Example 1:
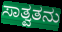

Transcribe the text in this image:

ಸಾತ್ವತನು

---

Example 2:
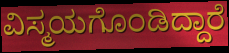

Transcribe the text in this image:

ವಿಸ್ಮಯಗೊಂಡಿದ್ದಾರೆ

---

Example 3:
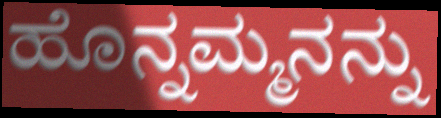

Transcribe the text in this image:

ಹೊನ್ನಮ್ಮನನ್ನು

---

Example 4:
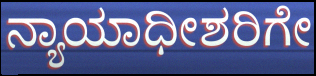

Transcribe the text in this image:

ನ್ಯಾಯಾಧೀಶರಿಗೇ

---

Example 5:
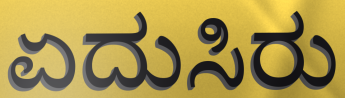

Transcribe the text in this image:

ಏದುಸಿರು